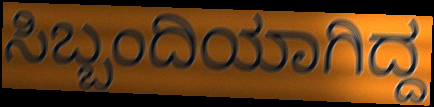
ಸಿಬ್ಬಂದಿಯಾಗಿದ್ದ